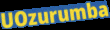
UOzurumba